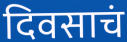
दिवसाचं